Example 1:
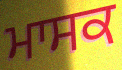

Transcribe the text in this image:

ਮਾਸਕ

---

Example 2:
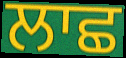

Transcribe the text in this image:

ਲਾਛ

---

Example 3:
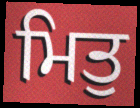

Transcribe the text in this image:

ਮਿਤੁ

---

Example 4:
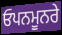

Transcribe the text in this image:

ਓਪਨਮੂਨਰੇ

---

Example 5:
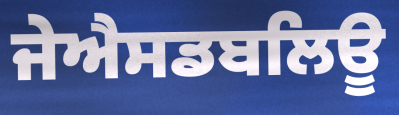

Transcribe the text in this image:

ਜੇਐਸਡਬਲਿਊ